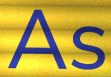
As